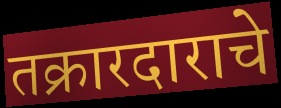
तक्रारदाराचे